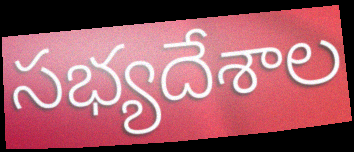
సభ్యదేశాల